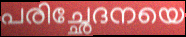
പരിച്ഛേദനയെ